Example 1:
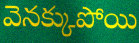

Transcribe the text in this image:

వెనక్కుపోయి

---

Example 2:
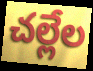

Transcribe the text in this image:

చల్లేల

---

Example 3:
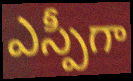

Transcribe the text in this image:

ఎస్పీగా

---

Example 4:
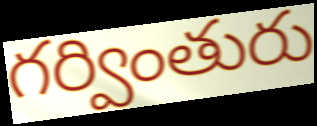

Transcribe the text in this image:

గర్వింతురు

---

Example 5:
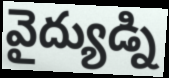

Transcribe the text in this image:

వైద్యుడ్ని